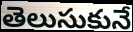
తెలుసుకునే